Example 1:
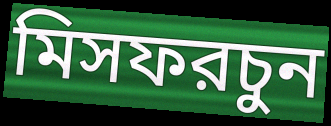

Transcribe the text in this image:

মিসফরচুন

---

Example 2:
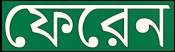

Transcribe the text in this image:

ফেরেন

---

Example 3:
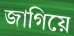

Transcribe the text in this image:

জাগিয়ে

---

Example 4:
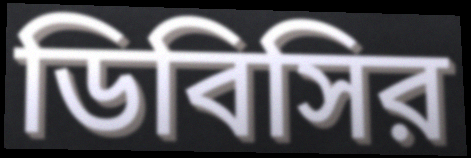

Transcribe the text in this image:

ডিবিসির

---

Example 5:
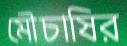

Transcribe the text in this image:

মৌচাষির